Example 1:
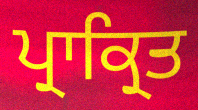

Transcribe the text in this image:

ਪ੍ਰਾਕ੍ਰਿਤ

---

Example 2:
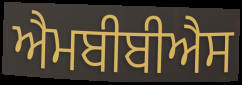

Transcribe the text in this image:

ਐਮਬੀਬੀਐਸ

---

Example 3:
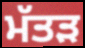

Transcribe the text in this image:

ਮੱਤੜ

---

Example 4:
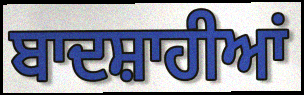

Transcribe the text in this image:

ਬਾਦਸ਼ਾਹੀਆਂ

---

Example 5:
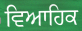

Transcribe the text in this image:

ਵਿਆਹਿਕ